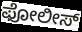
ಫೋಲೀಸ್